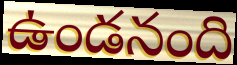
ఉండనంది